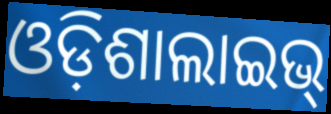
ଓଡ଼ିଶାଲାଇଭ୍